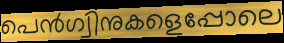
പെൻഗ്വിനുകളെപ്പോലെ